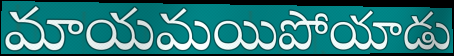
మాయమయిపోయాడు